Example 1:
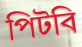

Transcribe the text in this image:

পিটবি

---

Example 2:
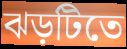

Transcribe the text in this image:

ঝড়টিতে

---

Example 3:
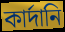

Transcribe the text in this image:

কার্দানি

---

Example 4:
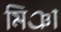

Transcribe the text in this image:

মিঞা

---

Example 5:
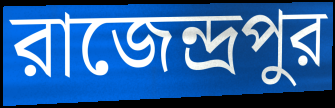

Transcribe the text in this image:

রাজেন্দ্রপুর